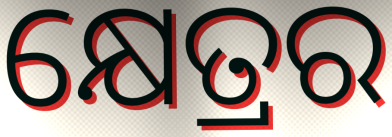
କ୍ଷେତ୍ରର